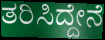
ತರಿಸಿದ್ದೇನೆ